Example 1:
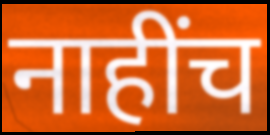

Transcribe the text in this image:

नाहींच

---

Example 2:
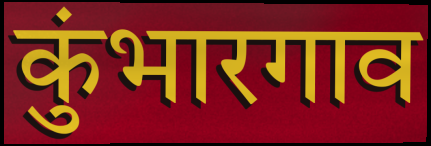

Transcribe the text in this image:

कुंभारगाव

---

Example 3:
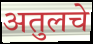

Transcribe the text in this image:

अतुलचे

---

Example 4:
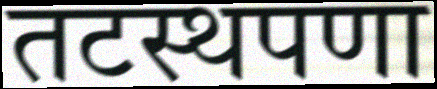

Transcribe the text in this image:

तटस्थपणा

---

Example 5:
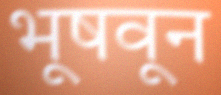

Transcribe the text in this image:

भूषवून